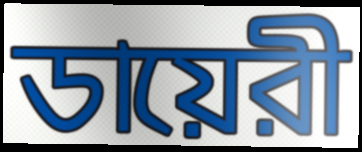
ডায়েরী